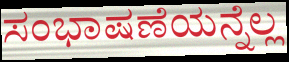
ಸಂಭಾಷಣೆಯನ್ನೆಲ್ಲ